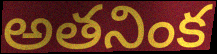
అతనింక